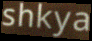
shkya